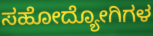
ಸಹೋದ್ಯೋಗಿಗಳ